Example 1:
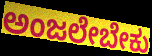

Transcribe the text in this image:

ಅಂಜಲೇಬೇಕು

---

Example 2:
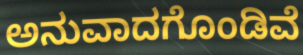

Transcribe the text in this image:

ಅನುವಾದಗೊಂಡಿವೆ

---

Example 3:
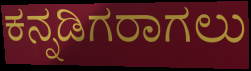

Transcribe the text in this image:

ಕನ್ನಡಿಗರಾಗಲು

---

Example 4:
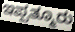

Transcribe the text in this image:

ಇಪ್ಪತ್ಮೂರು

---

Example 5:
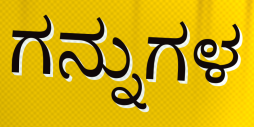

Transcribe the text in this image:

ಗನ್ನುಗಳ